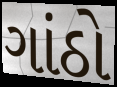
ગાંઠો